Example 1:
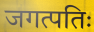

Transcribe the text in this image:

जगत्पतिः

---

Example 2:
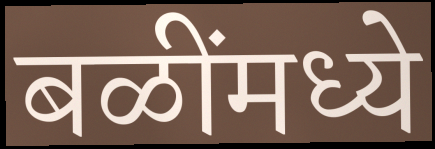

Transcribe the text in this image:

बळींमध्ये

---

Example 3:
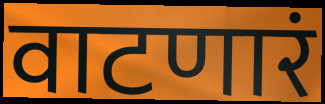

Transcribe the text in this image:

वाटणारं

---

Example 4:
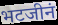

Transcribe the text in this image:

भटजीनं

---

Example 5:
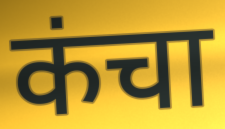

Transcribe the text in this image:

कंचा